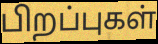
பிறப்புகள்